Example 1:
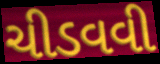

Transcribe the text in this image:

ચીડવવી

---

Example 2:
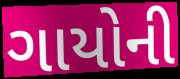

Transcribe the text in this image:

ગાયોની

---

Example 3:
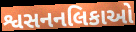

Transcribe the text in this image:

શ્વસનનલિકાઓ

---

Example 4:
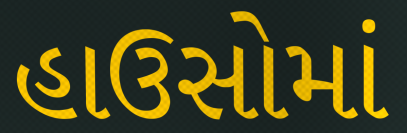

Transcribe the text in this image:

હાઉસોમાં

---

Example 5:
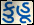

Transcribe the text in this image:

કુહૂ